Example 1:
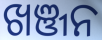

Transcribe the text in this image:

ଖଞ୍ଜନ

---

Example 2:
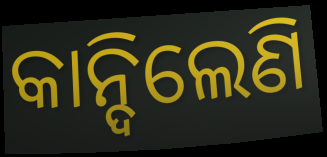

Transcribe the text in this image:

କାନ୍ଦିଲେଣି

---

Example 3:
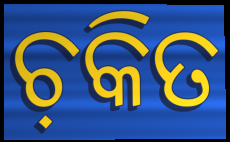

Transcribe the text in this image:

ଚ଼କିତ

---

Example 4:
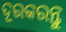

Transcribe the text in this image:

ଦୂରକରନ୍ତୁ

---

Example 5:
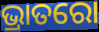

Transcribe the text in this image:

ଭ୍ରାତରୋ